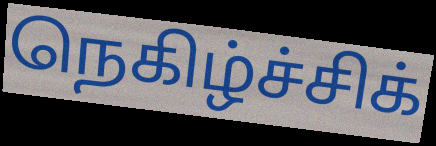
நெகிழ்ச்சிக்